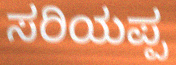
ಸರಿಯಪ್ಪ